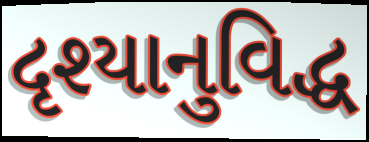
દૃશ્યાનુવિદ્ધ